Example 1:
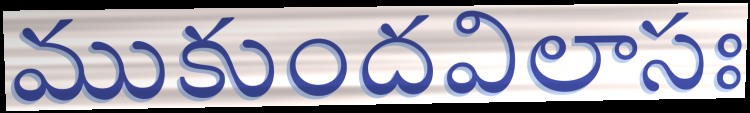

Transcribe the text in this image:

ముకుందవిలాసః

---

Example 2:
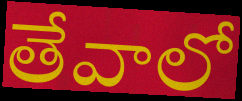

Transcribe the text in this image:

తేవాలో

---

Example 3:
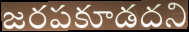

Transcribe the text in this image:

జరపకూడదని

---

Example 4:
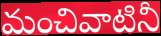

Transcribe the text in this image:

మంచివాటినీ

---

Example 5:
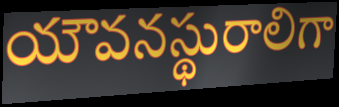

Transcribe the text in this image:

యౌవనస్థురాలిగా